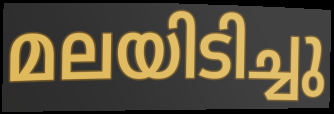
മലയിടിച്ചു